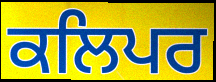
ਕਲਿਪਰ